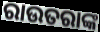
ରାଉତରାଙ୍କ